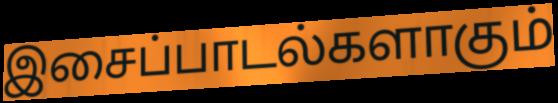
இசைப்பாடல்களாகும்